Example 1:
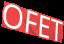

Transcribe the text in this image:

OFET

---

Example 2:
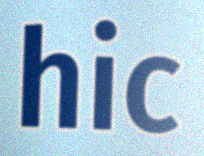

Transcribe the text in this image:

hic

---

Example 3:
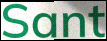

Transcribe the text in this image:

Sant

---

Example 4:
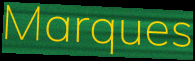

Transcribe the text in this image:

Marques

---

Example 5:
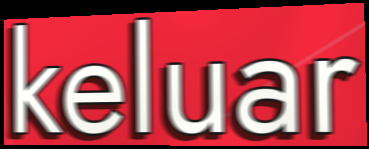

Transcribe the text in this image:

keluar